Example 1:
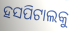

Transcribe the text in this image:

ହସପିଟାଲକୁ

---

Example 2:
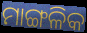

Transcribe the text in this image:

ମାଙ୍ଗଳିକ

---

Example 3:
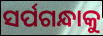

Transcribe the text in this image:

ସର୍ପଗନ୍ଧାକୁ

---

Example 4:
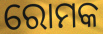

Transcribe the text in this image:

ରୋମକ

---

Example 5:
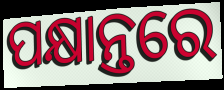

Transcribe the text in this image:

ପକ୍ଷାନ୍ତରେ